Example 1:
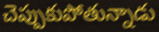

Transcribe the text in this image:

చెప్పుకుపోతున్నాడు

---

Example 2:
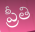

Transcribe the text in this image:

ప్రీతి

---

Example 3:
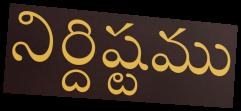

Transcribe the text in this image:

నిర్దిష్టము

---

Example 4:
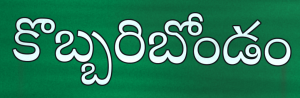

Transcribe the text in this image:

కొబ్బరిబోండం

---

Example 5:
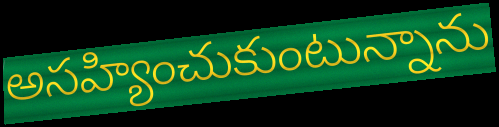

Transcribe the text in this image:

అసహ్యించుకుంటున్నాను